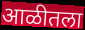
आळीतला